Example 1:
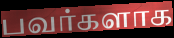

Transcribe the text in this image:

பவர்களாக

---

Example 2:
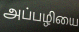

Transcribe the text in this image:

அப்பழியை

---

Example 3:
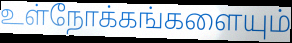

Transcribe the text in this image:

உள்நோக்கங்களையும்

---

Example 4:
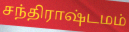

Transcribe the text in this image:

சந்திராஷ்டமம்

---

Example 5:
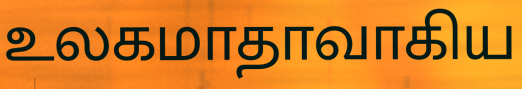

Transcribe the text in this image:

உலகமாதாவாகிய